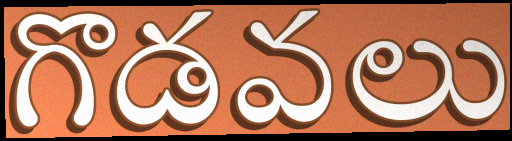
గొడవలు